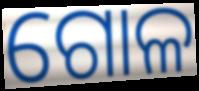
ଗୋଳ